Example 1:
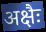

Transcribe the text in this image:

अक्षैः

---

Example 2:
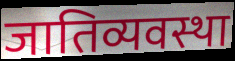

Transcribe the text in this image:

जातिव्यवस्था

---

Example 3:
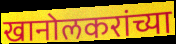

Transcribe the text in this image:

खानोलकरांच्या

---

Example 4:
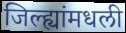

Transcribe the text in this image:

जिल्ह्यांमधली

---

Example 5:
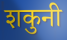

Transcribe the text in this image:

शकुनी